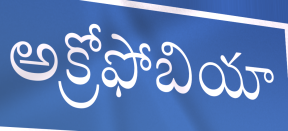
అక్రోఫోబియా